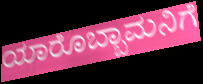
ಯಾರೊಬ್ಬಾಮನಿಗೆ